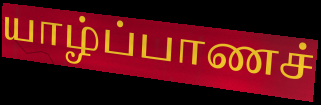
யாழ்ப்பாணச்